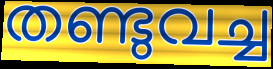
തണ്ടുവച്ച